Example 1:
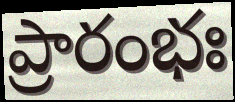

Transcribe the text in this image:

ప్రారంభః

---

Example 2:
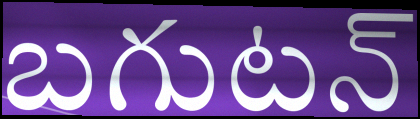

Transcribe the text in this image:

బగుటన్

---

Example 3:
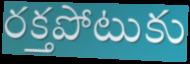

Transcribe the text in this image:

రక్తపోటుకు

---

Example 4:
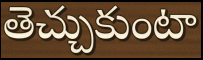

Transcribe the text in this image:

తెచ్చుకుంటా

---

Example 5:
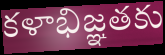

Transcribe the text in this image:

కళాభిజ్ఞతకు